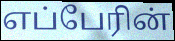
எப்பேரின்